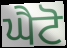
ਘੈਟੋ